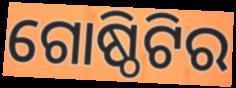
ଗୋଷ୍ଠିଟିର